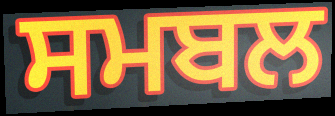
ਸਮਬਲ